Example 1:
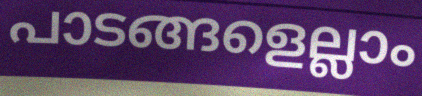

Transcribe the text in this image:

പാടങ്ങളെല്ലാം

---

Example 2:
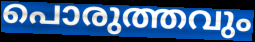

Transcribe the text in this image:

പൊരുത്തവും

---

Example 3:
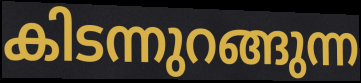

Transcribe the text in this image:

കിടന്നുറങ്ങുന്ന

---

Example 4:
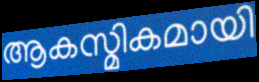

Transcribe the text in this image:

ആകസ്മികമായി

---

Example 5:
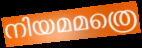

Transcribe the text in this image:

നിയമമത്രെ